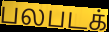
பலபடக்